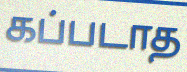
கப்படாத